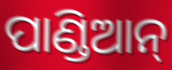
ପାଣ୍ଡିଆନ୍